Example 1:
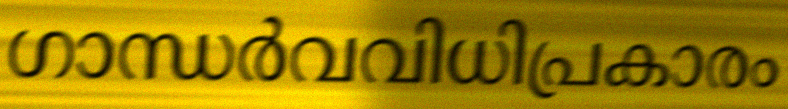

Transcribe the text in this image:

ഗാന്ധർവവിധിപ്രകാരം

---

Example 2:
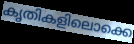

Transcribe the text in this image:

കൃതികളിലൊക്കെ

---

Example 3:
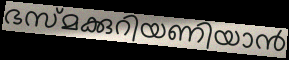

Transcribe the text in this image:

ഭസ്മക്കുറിയണിയാൻ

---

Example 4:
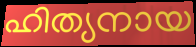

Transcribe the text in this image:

ഹിത്യനായ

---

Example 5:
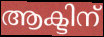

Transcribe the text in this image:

ആക്ടിന്